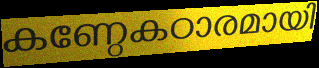
കണ്ഠേകഠാരമായി